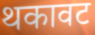
थकावट